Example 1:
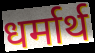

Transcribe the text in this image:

धर्मार्थ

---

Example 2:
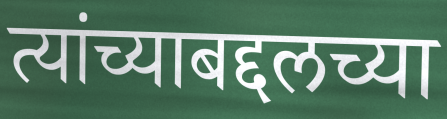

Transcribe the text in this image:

त्यांच्याबद्दलच्या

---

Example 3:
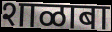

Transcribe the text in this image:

शाळाबा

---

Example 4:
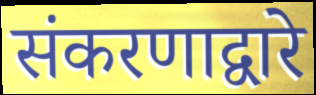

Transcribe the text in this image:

संकरणाद्वारे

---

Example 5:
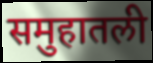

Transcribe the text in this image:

समुहातली